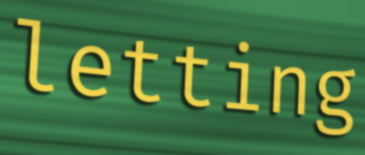
letting